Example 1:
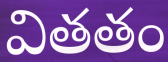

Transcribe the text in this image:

వితతం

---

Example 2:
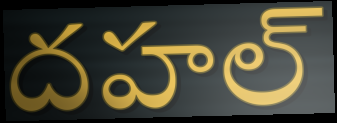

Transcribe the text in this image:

దహల్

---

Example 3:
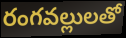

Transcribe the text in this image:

రంగవల్లులతో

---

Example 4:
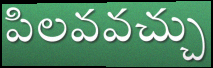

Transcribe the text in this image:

పిలవవచ్చు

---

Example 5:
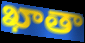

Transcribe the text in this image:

ఖాతా